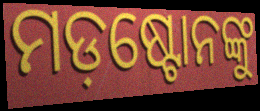
ମଡ଼ଷ୍ଟୋନଙ୍କୁ